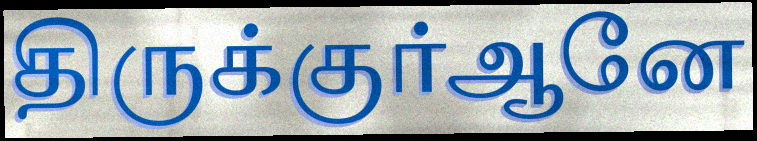
திருக்குர்ஆனே